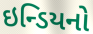
ઇન્ડિયનો